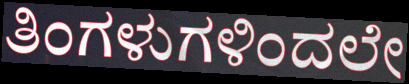
ತಿಂಗಳುಗಳಿಂದಲೇ